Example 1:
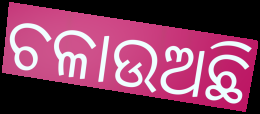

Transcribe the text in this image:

ଚଳାଉଅଛି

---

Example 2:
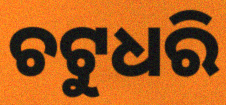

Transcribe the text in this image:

ଚଟୁଧରି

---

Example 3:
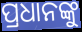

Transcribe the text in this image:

ପ୍ରଧାନଙ୍କୁ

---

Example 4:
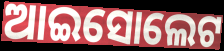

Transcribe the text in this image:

ଆଇସୋଲେଟ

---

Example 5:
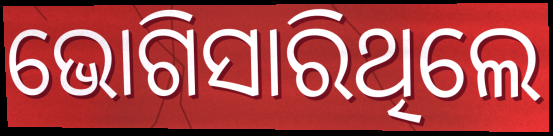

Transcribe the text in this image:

ଭୋଗିସାରିଥିଲେ